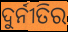
ଦୁର୍ନୀତିର